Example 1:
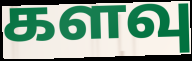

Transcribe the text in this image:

களவு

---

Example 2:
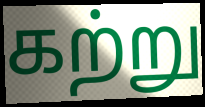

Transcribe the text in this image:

கற்று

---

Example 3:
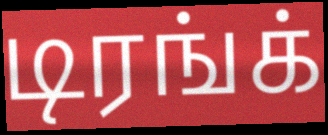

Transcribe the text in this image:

டிரங்க்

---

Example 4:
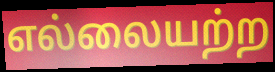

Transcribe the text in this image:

எல்லையற்ற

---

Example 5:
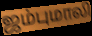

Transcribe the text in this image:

ஜம்புமாலி